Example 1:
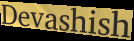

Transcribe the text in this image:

Devashish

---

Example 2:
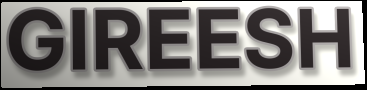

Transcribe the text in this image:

GIREESH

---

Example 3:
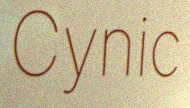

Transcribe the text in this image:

Cynic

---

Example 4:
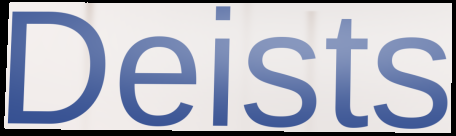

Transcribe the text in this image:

Deists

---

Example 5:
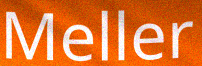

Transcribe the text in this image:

Meller